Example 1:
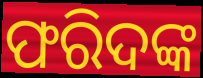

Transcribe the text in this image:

ଫରିଦଙ୍କ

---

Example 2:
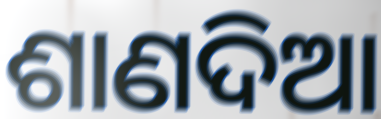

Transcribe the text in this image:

ଶାଣଦିଆ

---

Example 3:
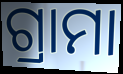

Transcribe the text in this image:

ଗ୍ରାମା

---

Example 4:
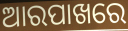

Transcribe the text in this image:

ଆରପାଖରେ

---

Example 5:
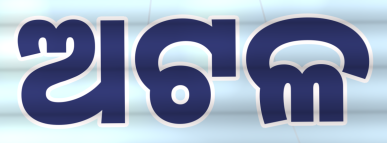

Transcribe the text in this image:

ଅଟଳ